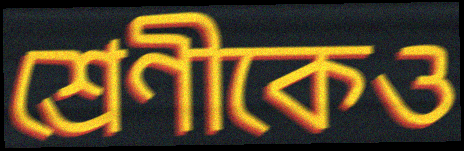
শ্রেণীকেও